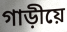
গাড়ীয়ে